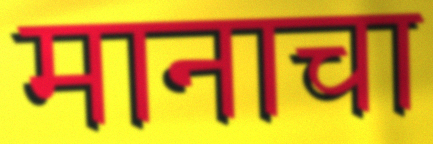
मानाचा